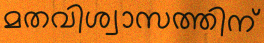
മതവിശ്വാസത്തിന്